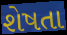
શેષતા